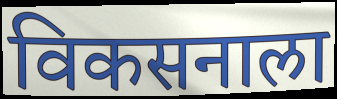
विकसनाला